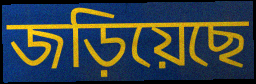
জড়িয়েছে